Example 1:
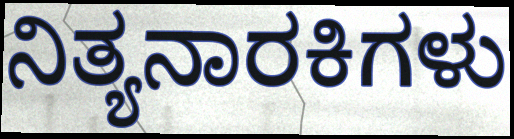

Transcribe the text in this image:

ನಿತ್ಯನಾರಕಿಗಳು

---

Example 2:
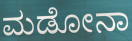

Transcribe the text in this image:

ಮಡೋನಾ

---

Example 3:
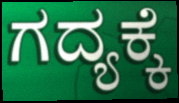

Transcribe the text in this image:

ಗದ್ಯಕ್ಕೆ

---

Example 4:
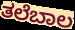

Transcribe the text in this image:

ತಲೆಬಾಲ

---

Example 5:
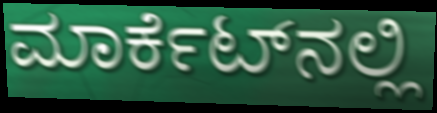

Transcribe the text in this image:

ಮಾರ್ಕೆಟ್‍ನಲ್ಲಿ